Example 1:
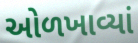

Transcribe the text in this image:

ઓળખાવ્યાં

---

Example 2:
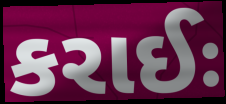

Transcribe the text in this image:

કરાઈઃ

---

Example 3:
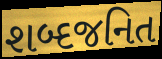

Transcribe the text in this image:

શબ્દજનિત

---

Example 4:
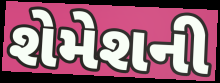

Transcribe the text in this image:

શેમેશની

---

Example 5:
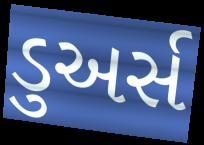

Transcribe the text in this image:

ડુઅર્સ